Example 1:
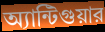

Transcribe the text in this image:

অ্যান্টিগুয়ার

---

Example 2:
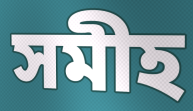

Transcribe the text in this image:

সমীহ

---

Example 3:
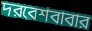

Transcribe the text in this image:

দরবেশবাবার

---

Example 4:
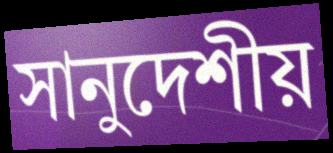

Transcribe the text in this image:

সানুদেশীয়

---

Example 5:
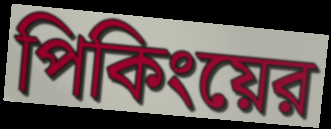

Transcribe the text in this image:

পিকিংয়ের